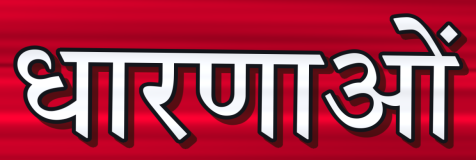
धारणाओं